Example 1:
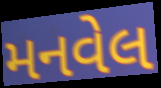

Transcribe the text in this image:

મનવેલ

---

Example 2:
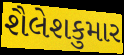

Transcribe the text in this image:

શૈલેશકુમાર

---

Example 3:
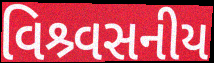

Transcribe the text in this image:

વિશ્ર્વસનીય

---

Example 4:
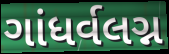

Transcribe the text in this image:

ગાંધર્વલગ્ન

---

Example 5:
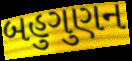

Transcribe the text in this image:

બહુગુણન